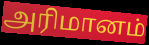
அரிமானம்